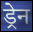
ड्रेन